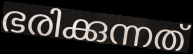
ഭരിക്കുന്നത്